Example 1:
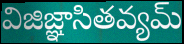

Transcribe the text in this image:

విజిజ్ఞాసితవ్యమ్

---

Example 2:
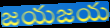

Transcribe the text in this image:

జయజయ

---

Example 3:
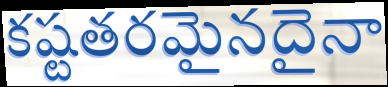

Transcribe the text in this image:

కష్టతరమైనదైనా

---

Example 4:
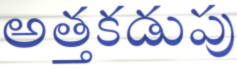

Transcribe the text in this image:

అత్తకడుపు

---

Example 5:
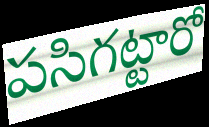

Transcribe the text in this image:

పసిగట్టారో